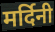
मर्दिनी